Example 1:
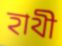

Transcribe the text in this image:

হাথী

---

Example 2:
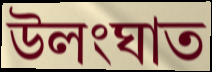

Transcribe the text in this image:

উলংঘাত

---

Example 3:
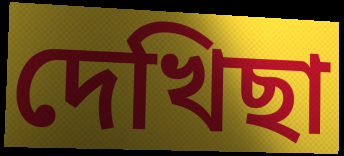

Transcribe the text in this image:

দেখিছা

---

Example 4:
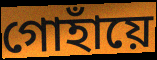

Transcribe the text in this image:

গোহাঁয়ে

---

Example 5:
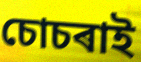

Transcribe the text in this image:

চোচৰাই